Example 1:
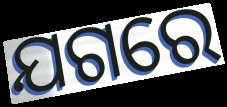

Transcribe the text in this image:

ଯଗରେ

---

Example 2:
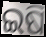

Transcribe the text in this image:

ଇଷି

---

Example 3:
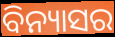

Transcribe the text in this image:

ବିନ୍ୟାସର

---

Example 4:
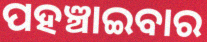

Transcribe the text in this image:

ପହଞ୍ଚାଇବାର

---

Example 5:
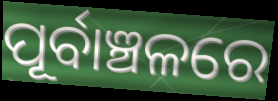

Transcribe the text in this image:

ପୂର୍ବାଞ୍ଚଳରେ